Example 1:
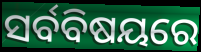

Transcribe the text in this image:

ସର୍ବବିଷୟରେ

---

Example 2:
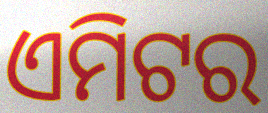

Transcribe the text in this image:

ଏମିଟର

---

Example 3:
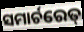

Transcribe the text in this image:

ସମାର୍ଚରେତ୍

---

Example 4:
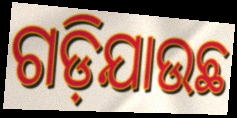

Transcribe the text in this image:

ଗଡ଼ିଯାଉଛ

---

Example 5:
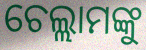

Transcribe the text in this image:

ଚେଲ୍ଲାମଙ୍କୁ